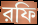
রফি